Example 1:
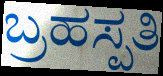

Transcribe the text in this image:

ಬ್ರಹಸ್ಪತಿ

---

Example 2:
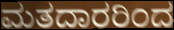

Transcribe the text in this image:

ಮತದಾರರಿಂದ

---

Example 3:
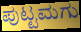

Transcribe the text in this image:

ಪುಟ್ಟಮಗು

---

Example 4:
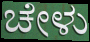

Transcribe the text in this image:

ಚೇಳು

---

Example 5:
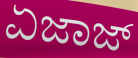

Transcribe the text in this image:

ಏಜಾಜ್